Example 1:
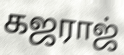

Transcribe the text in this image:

கஜராஜ்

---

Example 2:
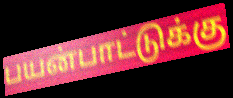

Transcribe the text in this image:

பயன்பாட்டுக்கு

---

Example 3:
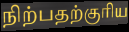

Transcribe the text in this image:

நிற்பதற்குரிய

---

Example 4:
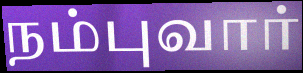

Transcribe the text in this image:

நம்புவார்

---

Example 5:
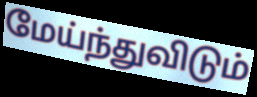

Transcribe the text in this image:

மேய்ந்துவிடும்